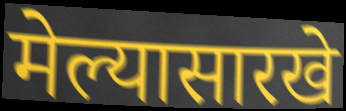
मेल्यासारखे